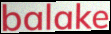
balake